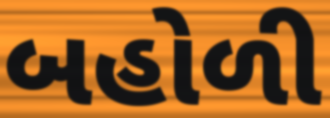
બહોળી